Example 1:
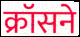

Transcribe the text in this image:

क्रॉसने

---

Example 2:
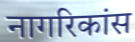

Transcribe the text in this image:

नागरिकांस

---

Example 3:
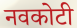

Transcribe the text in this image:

नवकोटी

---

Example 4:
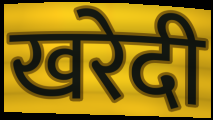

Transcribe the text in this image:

खरेदी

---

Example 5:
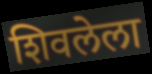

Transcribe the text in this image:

शिवलेला